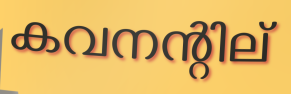
കവനന്റില്